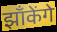
झाँकेंगे